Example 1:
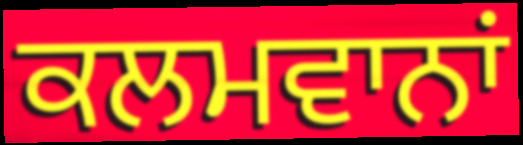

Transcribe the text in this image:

ਕਲਮਵਾਨਾਂ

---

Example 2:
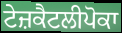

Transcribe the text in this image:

ਟੇਜ਼ਕੈਟਲੀਪੋਕਾ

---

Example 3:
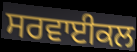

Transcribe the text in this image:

ਸਰਵਾਈਕਲ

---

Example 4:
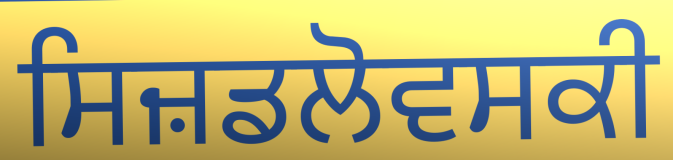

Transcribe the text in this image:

ਸਿਜ਼ਡਲੋਵਸਕੀ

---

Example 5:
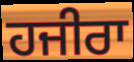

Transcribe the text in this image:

ਹਜੀਰਾ